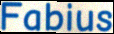
Fabius